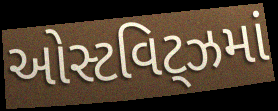
ઓસ્ટવિટ્ઝમાં